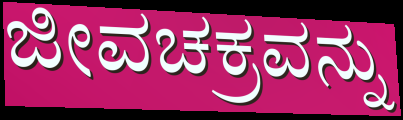
ಜೀವಚಕ್ರವನ್ನು